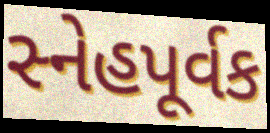
સ્નેહપૂર્વક